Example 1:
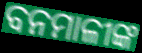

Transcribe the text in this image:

ବନମାଳୀଙ୍କ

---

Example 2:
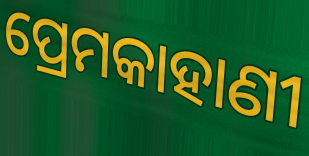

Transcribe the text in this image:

ପ୍ରେମକାହାଣୀ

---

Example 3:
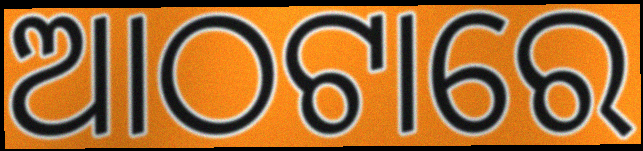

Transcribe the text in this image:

ଆଠଟାରେ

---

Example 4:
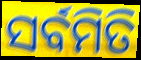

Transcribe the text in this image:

ସର୍ବମିତି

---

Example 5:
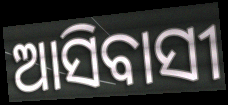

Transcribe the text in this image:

ଆସିବାସୀ